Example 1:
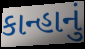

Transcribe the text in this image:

કાન્હાનું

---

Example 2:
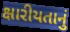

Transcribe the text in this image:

ક્ષારીયતાનું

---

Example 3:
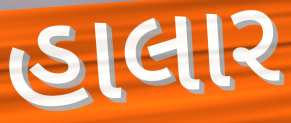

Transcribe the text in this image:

હાલાર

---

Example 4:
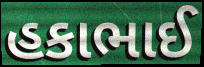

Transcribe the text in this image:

હકાભાઈ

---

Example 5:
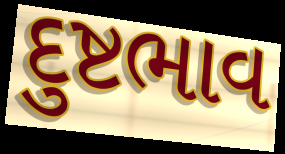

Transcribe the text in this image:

દુષ્ટભાવ